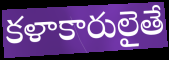
కళాకారులైతే